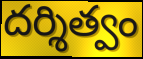
దర్శిత్వం